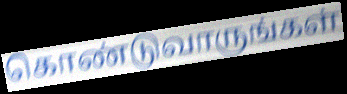
கொண்டுவாருங்கள்